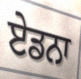
ਏਡਨਾ